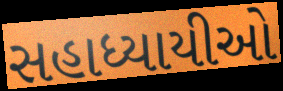
સહાધ્યાયીઓ